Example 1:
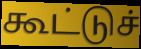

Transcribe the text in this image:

கூட்டுச்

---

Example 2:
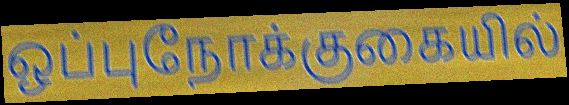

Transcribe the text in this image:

ஒப்புநோக்குகையில்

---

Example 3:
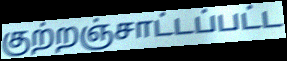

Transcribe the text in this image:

குற்றஞ்சாட்டப்பட்ட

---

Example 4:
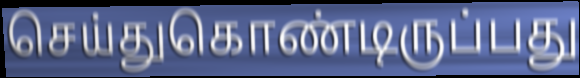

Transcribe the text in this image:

செய்துகொண்டிருப்பது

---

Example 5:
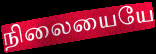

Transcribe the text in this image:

நிலையையே